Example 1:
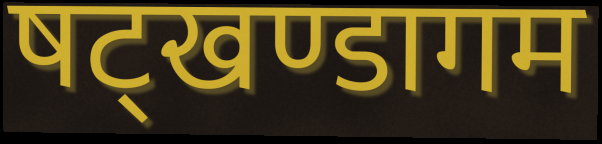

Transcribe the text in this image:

षट्खण्डागम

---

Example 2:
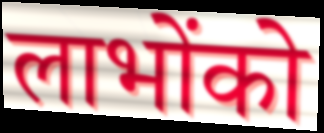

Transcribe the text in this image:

लाभोंको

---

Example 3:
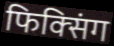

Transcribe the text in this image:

फिक्‍सिंग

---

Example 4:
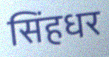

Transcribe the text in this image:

सिंहधर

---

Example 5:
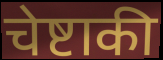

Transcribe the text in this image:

चेष्टाकी